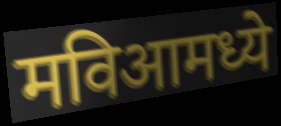
मविआमध्ये